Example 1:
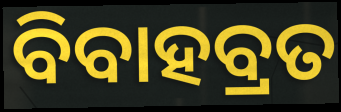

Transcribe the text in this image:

ବିବାହବ୍ରତ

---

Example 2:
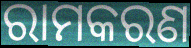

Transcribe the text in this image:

ରାମକରଣ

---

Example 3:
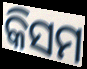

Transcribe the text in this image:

କିସମ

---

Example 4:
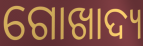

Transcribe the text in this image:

ଗୋଖାଦ୍ୟ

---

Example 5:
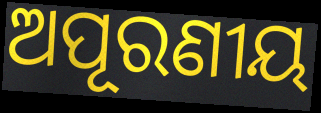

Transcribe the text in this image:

ଅପୂରଣୀୟ